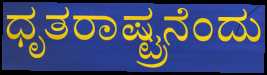
ಧೃತರಾಷ್ಟ್ರನೆಂದು